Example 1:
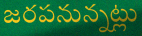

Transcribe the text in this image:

జరపనున్నట్లు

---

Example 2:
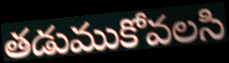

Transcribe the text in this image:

తడుముకోవలసి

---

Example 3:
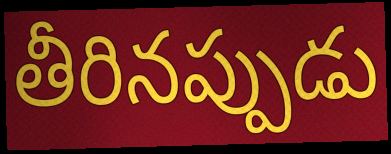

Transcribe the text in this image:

తీరినప్పుడు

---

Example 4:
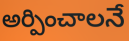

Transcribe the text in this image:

అర్పించాలనే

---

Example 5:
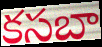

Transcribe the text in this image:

కసబా